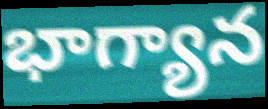
భాగ్యాన